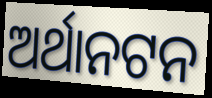
ଅର୍ଥାନଟନ